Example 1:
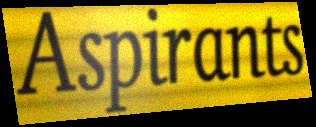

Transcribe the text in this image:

Aspirants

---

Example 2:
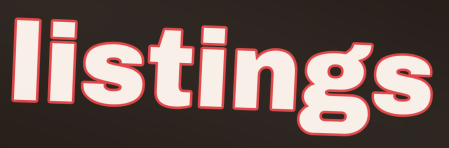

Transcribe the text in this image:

listings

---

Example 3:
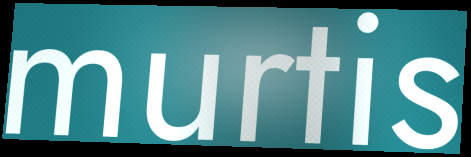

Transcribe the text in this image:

murtis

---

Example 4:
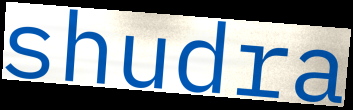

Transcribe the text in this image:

shudra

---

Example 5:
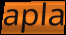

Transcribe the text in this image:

apla